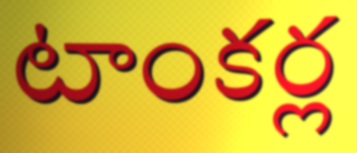
టాంకర్ల